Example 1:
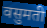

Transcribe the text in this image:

वसुमती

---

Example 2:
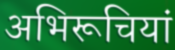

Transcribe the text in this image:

अभिरूचियां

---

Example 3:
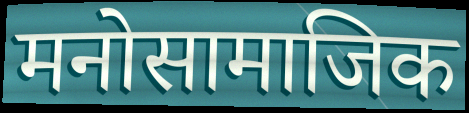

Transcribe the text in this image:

मनोसामाजिक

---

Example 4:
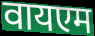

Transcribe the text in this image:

वायएम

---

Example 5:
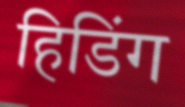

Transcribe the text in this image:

हिडिंग